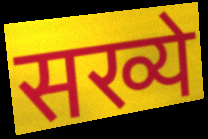
सख्ये